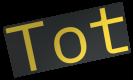
Tot